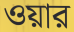
ওয়ার